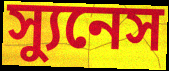
স্যুনেস